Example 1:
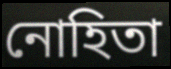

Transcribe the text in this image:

নোহিতা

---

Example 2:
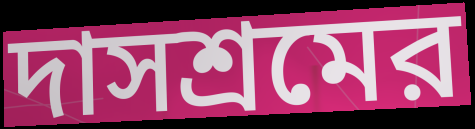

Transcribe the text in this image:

দাসশ্রমের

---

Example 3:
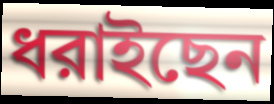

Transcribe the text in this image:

ধরাইছেন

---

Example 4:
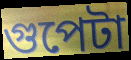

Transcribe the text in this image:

গুপেটা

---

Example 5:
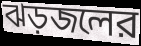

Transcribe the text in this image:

ঝড়জলের